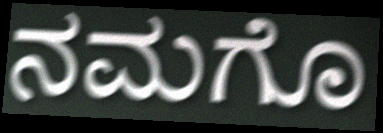
ನಮಗೊ